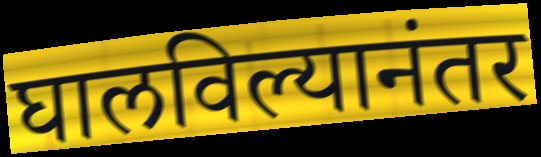
घालविल्यानंतर